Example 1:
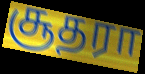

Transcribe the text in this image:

சூதரா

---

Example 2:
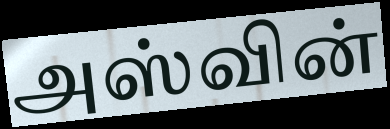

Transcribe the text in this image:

அஸ்வின்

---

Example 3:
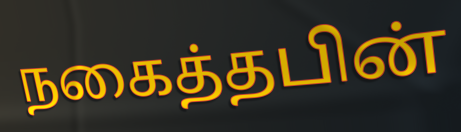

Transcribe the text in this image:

நகைத்தபின்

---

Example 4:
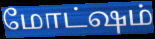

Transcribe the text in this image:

மோட்ஷம்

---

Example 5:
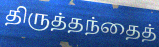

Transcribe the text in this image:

திருத்தந்தைத்